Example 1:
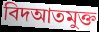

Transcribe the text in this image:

বিদআতমুক্ত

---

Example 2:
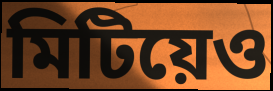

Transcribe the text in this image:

মিটিয়েও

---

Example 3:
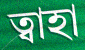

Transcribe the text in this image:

ত্বাহা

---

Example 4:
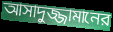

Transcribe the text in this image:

আসাদুজ্জামানের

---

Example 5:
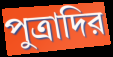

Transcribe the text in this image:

পুত্রাদির